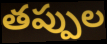
తప్పుల